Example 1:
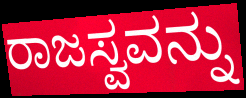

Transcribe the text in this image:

ರಾಜಸ್ವವನ್ನು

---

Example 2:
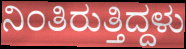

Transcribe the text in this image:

ನಿಂತಿರುತ್ತಿದ್ದಳು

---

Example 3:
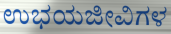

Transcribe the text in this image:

ಉಭಯಜೀವಿಗಳ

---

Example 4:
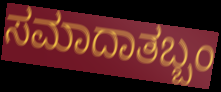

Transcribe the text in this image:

ಸಮಾದಾತಬ್ಬಂ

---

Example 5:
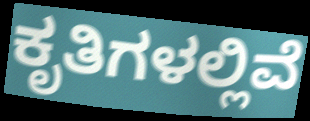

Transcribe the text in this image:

ಕೃತಿಗಳಲ್ಲಿವೆ